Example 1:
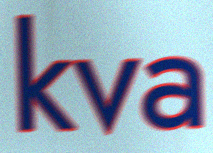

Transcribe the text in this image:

kva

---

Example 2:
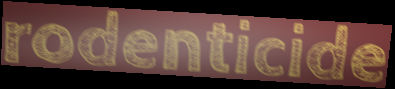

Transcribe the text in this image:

rodenticide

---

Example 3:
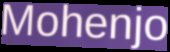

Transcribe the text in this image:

Mohenjo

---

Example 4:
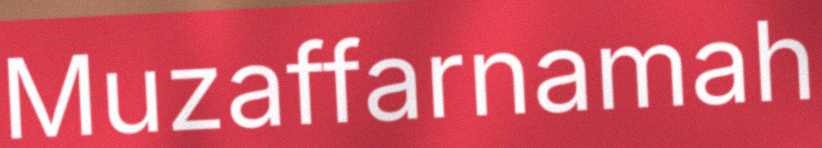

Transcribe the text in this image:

Muzaffarnamah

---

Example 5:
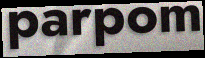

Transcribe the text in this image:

parpom